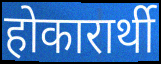
होकारार्थी